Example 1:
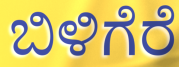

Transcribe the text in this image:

ಬಿಳಿಗೆರೆ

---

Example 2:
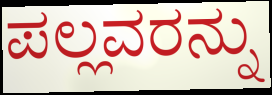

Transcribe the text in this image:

ಪಲ್ಲವರನ್ನು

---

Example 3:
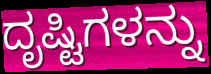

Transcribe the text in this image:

ದೃಷ್ಟಿಗಳನ್ನು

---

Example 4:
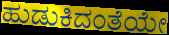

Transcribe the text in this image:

ಹುಡುಕಿದಂತೆಯೇ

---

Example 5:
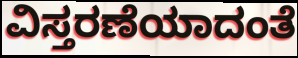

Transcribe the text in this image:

ವಿಸ್ತರಣೆಯಾದಂತೆ